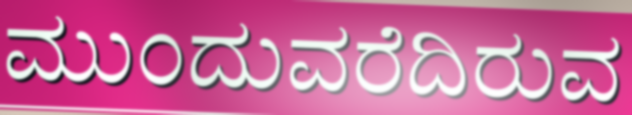
ಮುಂದುವರೆದಿರುವ